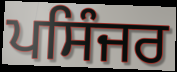
ਪਸਿੰਜਰ